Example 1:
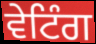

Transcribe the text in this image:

ਵੇਟਿੰਗ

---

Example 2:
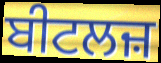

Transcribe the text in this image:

ਬੀਟਲਜ਼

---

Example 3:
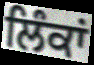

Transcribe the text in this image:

ਲਿੰਕਾਂ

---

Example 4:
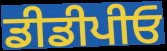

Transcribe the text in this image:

ਡੀਡੀਪੀਓ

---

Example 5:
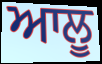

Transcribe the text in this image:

ਆਲੂ